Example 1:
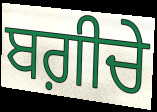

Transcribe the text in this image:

ਬਗ਼ੀਚੇ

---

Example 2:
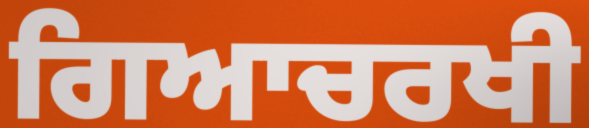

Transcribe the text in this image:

ਗਿਆਚਰਖੀ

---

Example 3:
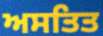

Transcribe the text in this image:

ਅਸਤਿਤ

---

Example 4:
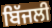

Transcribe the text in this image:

ਬਿੱਜਲੀ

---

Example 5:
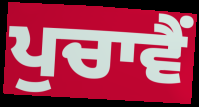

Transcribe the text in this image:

ਪੁਚਾਵੈਂ